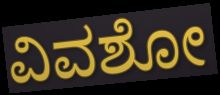
ವಿವಶೋ